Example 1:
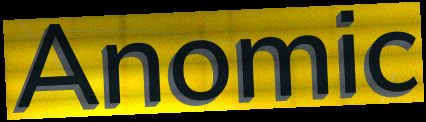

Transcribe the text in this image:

Anomic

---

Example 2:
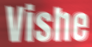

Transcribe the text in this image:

Vishe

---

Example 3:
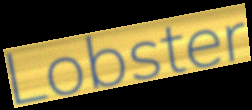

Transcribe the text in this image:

Lobster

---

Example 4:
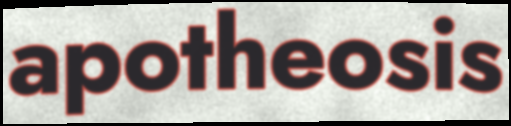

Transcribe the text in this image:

apotheosis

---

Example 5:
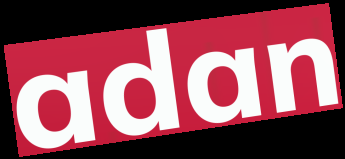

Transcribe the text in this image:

adan